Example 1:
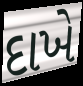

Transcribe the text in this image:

દાખે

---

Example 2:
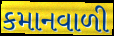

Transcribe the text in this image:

કમાનવાળી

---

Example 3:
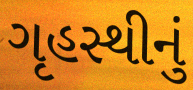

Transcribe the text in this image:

ગૃહસ્થીનું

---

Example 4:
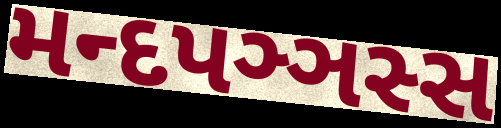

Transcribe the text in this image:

મન્દપઞ્ઞસ્સ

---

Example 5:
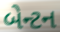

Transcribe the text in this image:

બેન્ટન